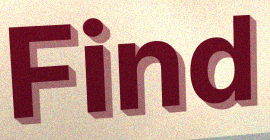
Find